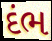
દંભ